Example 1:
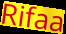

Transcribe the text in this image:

Rifaa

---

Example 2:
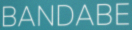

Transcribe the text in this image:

BANDABE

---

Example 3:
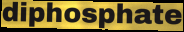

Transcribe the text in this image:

diphosphate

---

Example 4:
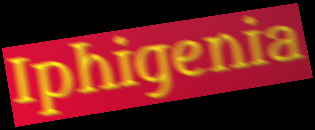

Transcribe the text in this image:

Iphigenia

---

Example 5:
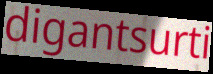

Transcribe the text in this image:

digantsurti